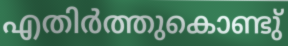
എതിർത്തുകൊണ്ടു്